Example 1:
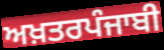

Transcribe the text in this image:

ਅਖ਼ਤਰਪੰਜਾਬੀ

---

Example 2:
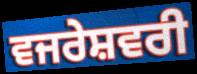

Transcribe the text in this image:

ਵਜਰੇਸ਼ਵਰੀ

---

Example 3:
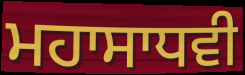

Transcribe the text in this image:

ਮਹਾਸਾਧਵੀ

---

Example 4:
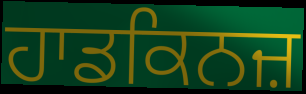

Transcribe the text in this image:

ਹਾਡਕਿਨਜ਼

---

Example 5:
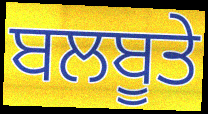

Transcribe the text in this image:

ਬਲਬੂਤੇ